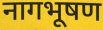
नागभूषण